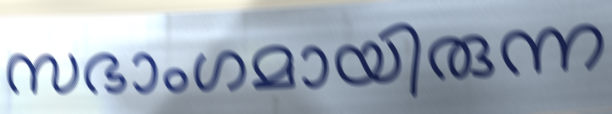
സഭാംഗമായിരുന്ന